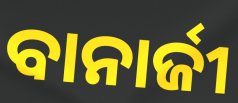
ବାନାର୍ଜୀ